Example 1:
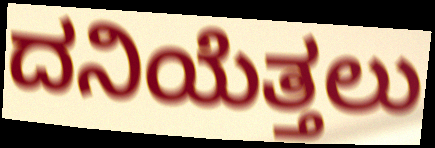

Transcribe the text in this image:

ದನಿಯೆತ್ತಲು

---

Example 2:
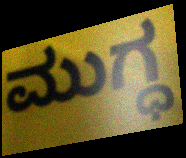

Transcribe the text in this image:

ಮುಗ್ಧ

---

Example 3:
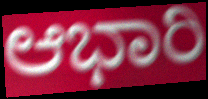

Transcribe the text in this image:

ಆಭಾರಿ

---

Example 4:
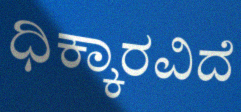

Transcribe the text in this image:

ಧಿಕ್ಕಾರವಿದೆ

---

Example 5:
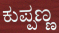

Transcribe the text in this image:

ಕುಪ್ಪಣ್ಣ